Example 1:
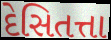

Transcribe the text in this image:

દેસિતત્તા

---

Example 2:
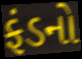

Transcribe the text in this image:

ફંડનો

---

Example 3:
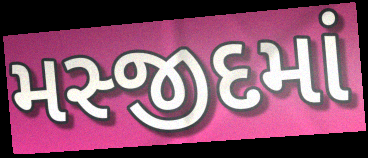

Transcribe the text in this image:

મસ્જીદમાં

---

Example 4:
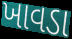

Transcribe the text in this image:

ખાવડા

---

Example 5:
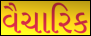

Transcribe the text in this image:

વૈચારિક